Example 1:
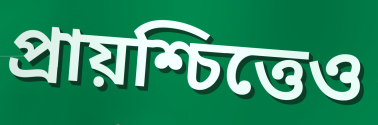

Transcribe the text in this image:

প্রায়শ্চিত্তেও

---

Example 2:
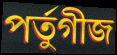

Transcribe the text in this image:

পর্তুগীজ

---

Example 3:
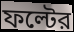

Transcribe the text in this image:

ফল্টের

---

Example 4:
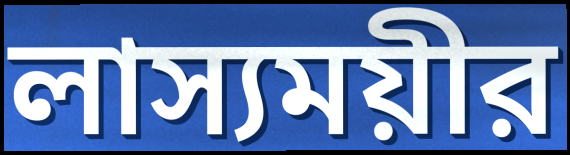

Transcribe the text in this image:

লাস্যময়ীর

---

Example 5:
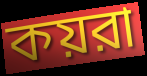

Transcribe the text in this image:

কয়রা